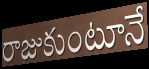
రాజుకుంటూనే